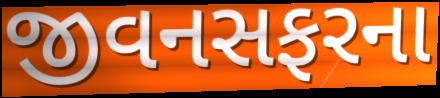
જીવનસફરના